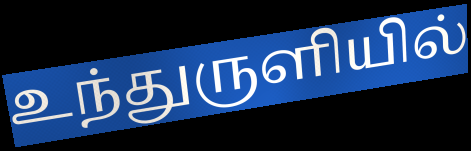
உந்துருளியில்